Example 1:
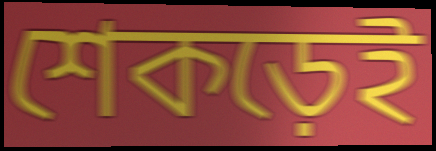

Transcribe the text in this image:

শেকড়েই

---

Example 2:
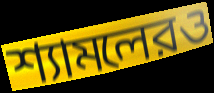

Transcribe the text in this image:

শ্যামলেরও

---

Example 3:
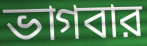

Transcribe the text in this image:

ভাগবার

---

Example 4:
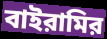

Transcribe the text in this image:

বাইরামির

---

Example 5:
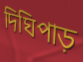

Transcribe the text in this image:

দিঘিপাড়